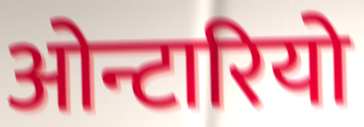
ओन्टारियो